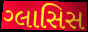
ગ્લાસિસ